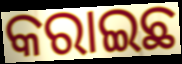
କରାଇଛ